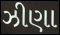
ઝીણા